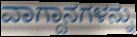
ವಾಗ್ದಾನಗಳನ್ನು